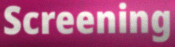
Screening